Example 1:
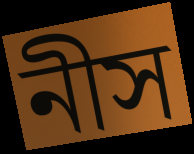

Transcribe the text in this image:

নীস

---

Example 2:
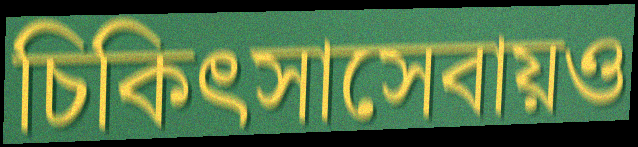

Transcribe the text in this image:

চিকিৎসাসেবায়ও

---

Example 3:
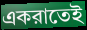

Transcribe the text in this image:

একরাতেই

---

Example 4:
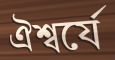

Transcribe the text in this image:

ঐশ্বর্যে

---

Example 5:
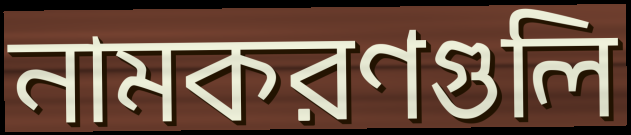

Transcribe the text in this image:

নামকরণগুলি